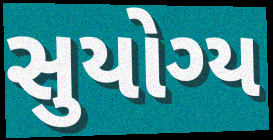
સુયોગ્ય